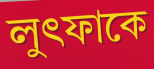
লুৎফাকে